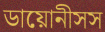
ডায়োনীসস